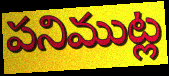
పనిముట్ల